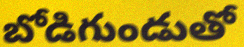
బోడిగుండుతో